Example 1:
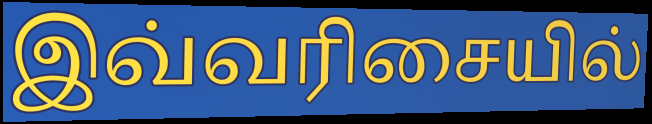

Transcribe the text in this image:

இவ்வரிசையில்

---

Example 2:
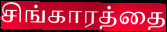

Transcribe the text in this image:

சிங்காரத்தை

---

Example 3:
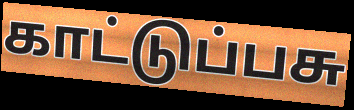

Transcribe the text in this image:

காட்டுப்பசு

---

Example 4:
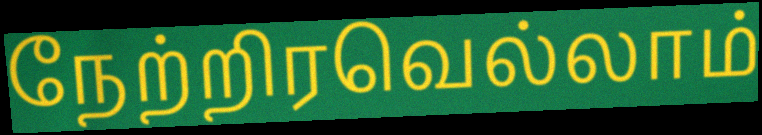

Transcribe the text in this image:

நேற்றிரவெல்லாம்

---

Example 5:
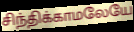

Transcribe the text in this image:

சிந்திக்காமலேயே